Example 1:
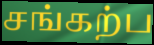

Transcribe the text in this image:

சங்கற்ப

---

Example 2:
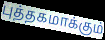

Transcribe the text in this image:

புத்தகமாக்கும்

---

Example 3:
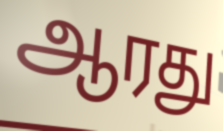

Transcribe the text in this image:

ஆரது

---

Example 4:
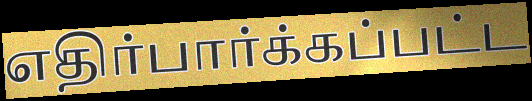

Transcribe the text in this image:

எதிர்பார்க்கப்பட்ட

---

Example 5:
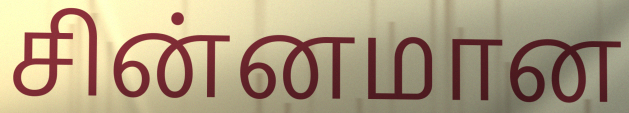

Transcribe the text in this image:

சின்னமான